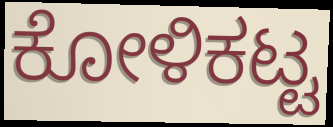
ಕೋಳಿಕಟ್ಟ